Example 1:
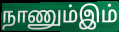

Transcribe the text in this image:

நாணும்இம்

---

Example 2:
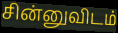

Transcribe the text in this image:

சின்னுவிடம்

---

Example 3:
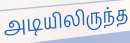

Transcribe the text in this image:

அடியிலிருந்த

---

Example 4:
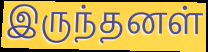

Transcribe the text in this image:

இருந்தனள்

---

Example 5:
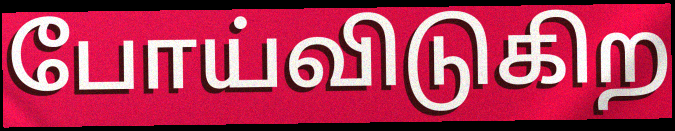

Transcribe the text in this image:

போய்விடுகிற